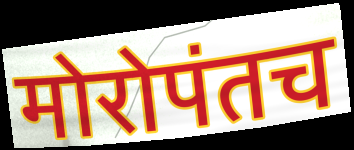
मोरोपंतच